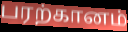
பரற்கானம்